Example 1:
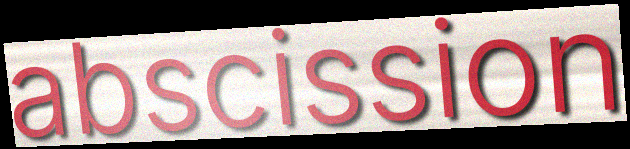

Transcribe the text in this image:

abscission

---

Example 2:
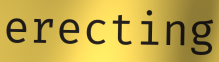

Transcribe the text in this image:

erecting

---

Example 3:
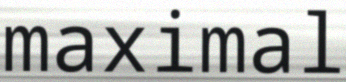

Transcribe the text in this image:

maximal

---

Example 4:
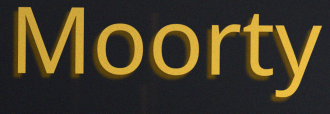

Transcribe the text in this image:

Moorty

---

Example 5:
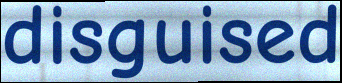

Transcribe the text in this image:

disguised